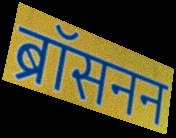
ब्रॉसनन